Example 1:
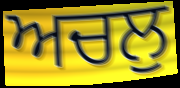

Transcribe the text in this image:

ਅਚਲੁ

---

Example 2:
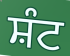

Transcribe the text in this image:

ਸ਼ੰਟ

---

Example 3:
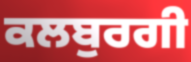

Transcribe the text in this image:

ਕਲਬੁਰਗੀ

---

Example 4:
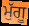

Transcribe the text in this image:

ਮੁੱਗੂ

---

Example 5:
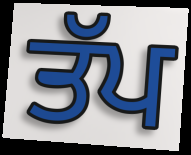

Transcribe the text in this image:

ਤੱਪ